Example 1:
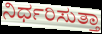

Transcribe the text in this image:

ನಿರ್ಧರಿಸುತ್ತಾ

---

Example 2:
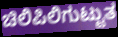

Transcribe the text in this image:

ಚಿಲಿಪಿಲಿಗುಟ್ಟುತ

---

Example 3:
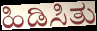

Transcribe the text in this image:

ಹಿಡಿಸಿತು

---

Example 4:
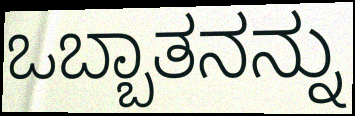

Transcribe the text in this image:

ಒಬ್ಬಾತನನ್ನು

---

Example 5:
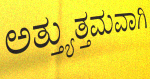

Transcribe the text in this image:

ಅತ್ತ್ಯುತ್ತಮವಾಗಿ